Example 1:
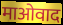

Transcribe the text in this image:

माओवाद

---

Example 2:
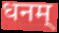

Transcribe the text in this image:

धनम्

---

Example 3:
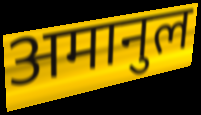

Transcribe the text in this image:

अमानुल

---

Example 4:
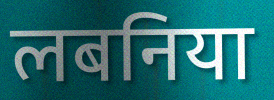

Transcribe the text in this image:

लबनिया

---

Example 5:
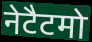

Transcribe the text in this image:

नेटैटमो